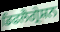
ਡਿਫਲੈਗ੍ਰੇਸ਼ਨ